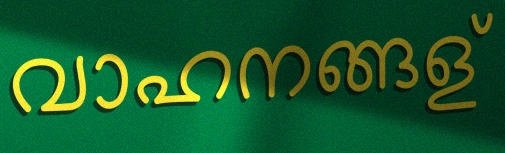
വാഹനങ്ങള്